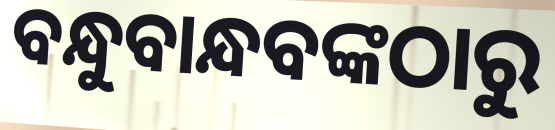
ବନ୍ଧୁବାନ୍ଧବଙ୍କଠାରୁ